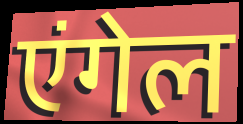
एंगेल